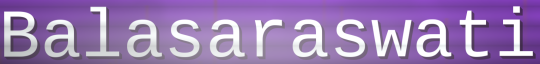
Balasaraswati